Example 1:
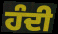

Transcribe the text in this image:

ਹੰਦੀ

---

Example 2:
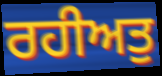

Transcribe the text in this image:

ਰਹੀਅਤੁ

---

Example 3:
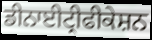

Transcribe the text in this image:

ਡੀਨਾਈਟ੍ਰੀਫੀਕੇਸ਼ਨ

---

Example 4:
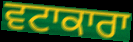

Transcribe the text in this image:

ਵਟਾਕਾਰਾ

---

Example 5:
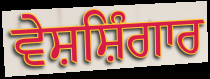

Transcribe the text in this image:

ਵੇਸ਼ਸ਼ਿੰਗਾਰ